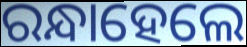
ରନ୍ଧାହେଲେ